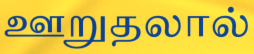
ஊறுதலால்